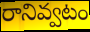
రానివ్వటం